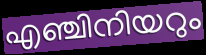
എഞ്ചിനിയറും